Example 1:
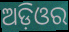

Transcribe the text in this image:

ଅଡ଼ିଓର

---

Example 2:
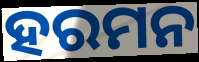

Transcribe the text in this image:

ହରମନ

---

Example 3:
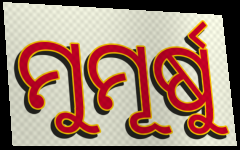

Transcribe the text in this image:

ମୁମୂର୍ଷୁ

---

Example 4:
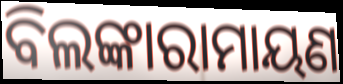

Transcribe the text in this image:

ବିଲଙ୍କାରାମାୟଣ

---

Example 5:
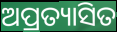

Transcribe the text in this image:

ଅପ୍ରତ୍ୟାସିତ